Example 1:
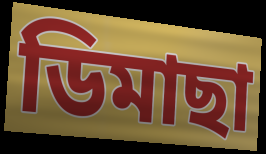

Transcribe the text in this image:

ডিমাছা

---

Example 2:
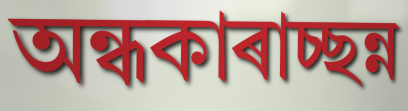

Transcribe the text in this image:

অন্ধকাৰাচ্ছন্ন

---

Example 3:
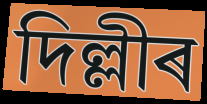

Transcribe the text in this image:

দিল্লীৰ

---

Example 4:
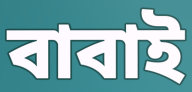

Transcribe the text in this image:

বাবাই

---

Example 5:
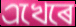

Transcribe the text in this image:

এখেৰে